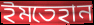
ইমতেহান